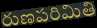
రుణపరిమితి